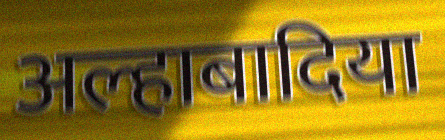
अल्हाबादिया